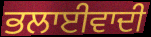
ਭਲਾਈਵਾਦੀ